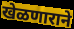
खेळणाराने